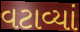
વટાવ્યાં